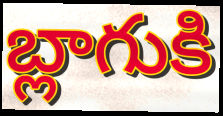
బ్లాగుకి